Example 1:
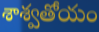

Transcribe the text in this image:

శాశ్వతోయం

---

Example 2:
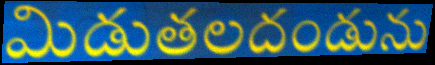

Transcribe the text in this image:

మిడుతలదండును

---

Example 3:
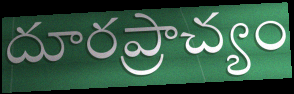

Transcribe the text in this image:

దూరప్రాచ్యం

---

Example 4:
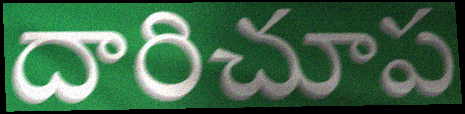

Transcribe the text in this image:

దారిచూప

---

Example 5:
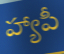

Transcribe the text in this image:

హ్యాపీ